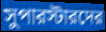
সুপারস্টারদের